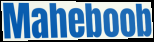
Maheboob